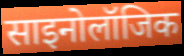
साइनोलॉजिक